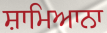
ਸ਼ਾਮਿਆਨਾ